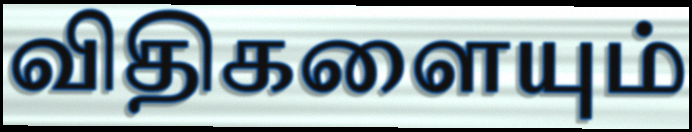
விதிகளையும்